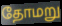
தோமறு